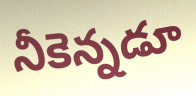
నీకెన్నడూ